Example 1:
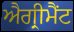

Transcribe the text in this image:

ਐਗ੍ਰੀਮੈਂਟ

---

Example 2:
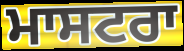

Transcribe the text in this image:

ਮਾਸਟਰਾ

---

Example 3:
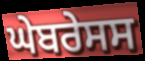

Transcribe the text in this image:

ਘੇਬਰੇਸਸ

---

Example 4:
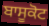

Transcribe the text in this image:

ਬਾਸੂਕੋਟ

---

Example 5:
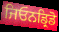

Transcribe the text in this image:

ਜਿਓਨਡ੍ਰਿਡੋ